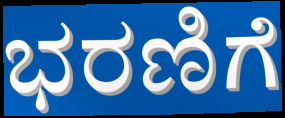
ಭರಣಿಗೆ